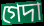
গেদা